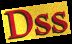
Dss